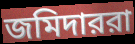
জমিদাররা